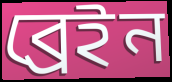
ব্ৰেইন